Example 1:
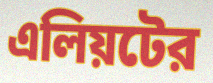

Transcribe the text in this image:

এলিয়টের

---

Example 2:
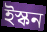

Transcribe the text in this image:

ইস্কন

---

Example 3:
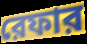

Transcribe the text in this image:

রেফার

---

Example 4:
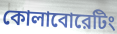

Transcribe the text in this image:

কোলাবোরেটিং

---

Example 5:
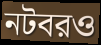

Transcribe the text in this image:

নটবরও